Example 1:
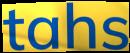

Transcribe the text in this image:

tahs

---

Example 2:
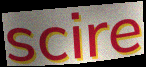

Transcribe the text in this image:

scire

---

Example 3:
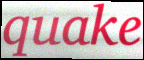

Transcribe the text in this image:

quake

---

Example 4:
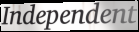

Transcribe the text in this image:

Independent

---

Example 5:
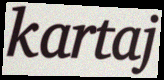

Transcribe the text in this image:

kartaj